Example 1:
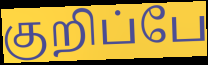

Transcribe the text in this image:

குறிப்பே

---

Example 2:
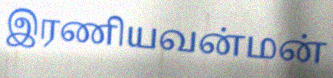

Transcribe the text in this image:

இரணியவன்மன்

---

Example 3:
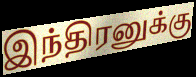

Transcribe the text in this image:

இந்திரனுக்கு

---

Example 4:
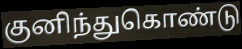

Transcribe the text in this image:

குனிந்துகொண்டு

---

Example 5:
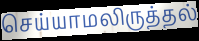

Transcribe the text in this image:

செய்யாமலிருத்தல்